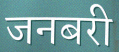
जनबरी